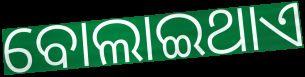
ବୋଲାଇଥାଏ